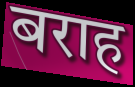
बराह